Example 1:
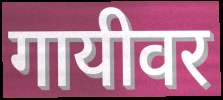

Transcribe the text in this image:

गायीवर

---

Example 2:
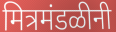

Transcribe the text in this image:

मित्रमंडळीनी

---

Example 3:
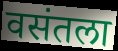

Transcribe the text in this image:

वसंतला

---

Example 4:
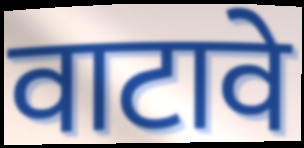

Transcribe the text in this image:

वाटावे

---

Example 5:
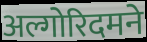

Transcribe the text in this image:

अल्गोरिदमने